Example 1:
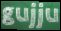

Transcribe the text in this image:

gujju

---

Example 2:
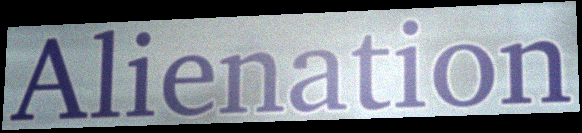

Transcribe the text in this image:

Alienation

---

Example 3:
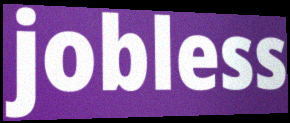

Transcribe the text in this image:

jobless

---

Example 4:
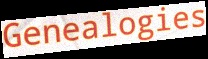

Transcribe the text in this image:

Genealogies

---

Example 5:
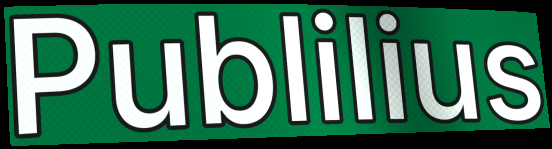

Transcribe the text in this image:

Publilius